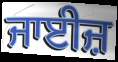
ਜਾਈਜ਼